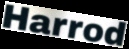
Harrod